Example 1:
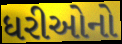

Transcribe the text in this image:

ધરીઓનો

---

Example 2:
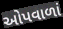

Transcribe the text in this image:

ઓપવાળાં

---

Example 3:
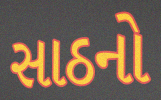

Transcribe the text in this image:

સાઠનો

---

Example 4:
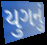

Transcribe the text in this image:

યુગનું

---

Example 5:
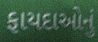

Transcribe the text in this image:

ફાયદાઓનું